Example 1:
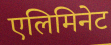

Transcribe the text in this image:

एलिमिनेट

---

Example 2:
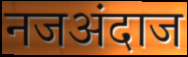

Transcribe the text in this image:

नजअंदाज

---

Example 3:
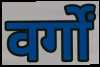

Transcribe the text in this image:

वर्गों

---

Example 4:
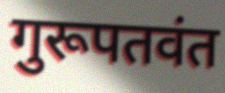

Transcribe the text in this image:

गुरूपतवंत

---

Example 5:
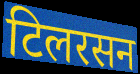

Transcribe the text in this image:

टिलरसन